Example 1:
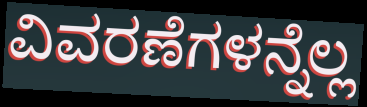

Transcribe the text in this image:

ವಿವರಣೆಗಳನ್ನೆಲ್ಲ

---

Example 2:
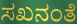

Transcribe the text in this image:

ಸಖನಂತೆ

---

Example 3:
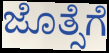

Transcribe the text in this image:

ಜೊತ್ಸೆಗೆ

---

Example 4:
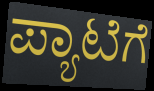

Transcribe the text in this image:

ಪ್ಯಾಟೆಗೆ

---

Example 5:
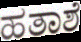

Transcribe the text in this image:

ಹತಾಶೆ